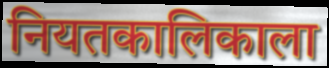
नियतकालिकाला